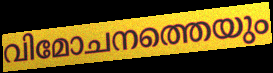
വിമോചനത്തെയും